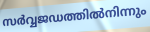
സർവ്വജഡത്തിൽനിന്നും